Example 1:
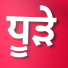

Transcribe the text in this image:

ਧੂੜੇ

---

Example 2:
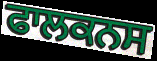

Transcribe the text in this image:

ਫਾਲਕਨਸ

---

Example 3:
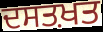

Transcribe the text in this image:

ਦਸਤ਼ਖਤ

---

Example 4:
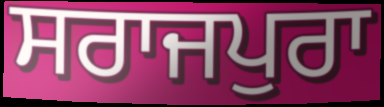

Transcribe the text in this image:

ਸਰਾਜਪੁਰਾ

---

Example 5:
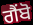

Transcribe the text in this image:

ਗੈਂਬੋ